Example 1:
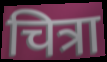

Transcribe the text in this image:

चित्रा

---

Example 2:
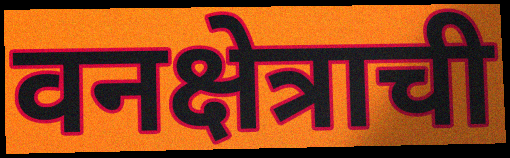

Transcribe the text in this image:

वनक्षेत्राची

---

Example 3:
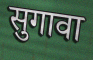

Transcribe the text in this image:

सुगावा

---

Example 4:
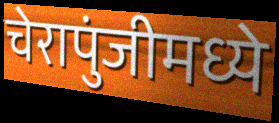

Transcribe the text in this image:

चेरापुंजीमध्ये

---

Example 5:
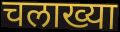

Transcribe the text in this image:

चलाख्या